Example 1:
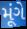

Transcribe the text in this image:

મૂંગે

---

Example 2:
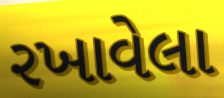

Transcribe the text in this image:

રખાવેલા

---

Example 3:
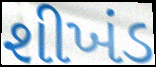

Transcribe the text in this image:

શીખંડ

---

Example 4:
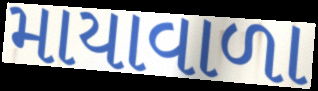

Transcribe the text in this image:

માયાવાળા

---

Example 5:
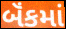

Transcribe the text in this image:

બૅંકમાં